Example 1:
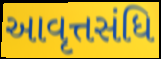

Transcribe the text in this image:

આવૃત્તસંધિ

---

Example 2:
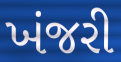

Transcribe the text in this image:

ખંજરી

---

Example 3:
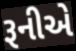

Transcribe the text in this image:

રૂનીએ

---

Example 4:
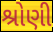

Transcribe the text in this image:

શ્રોણી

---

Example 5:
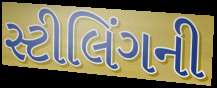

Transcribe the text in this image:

સ્ટીલિંગની